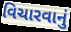
વિચારવાનું